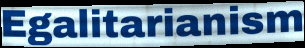
Egalitarianism